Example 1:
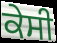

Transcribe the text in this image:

ਕੇਸੀ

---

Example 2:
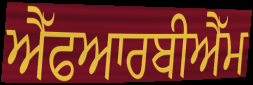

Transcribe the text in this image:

ਐੱਫਆਰਬੀਐੱਮ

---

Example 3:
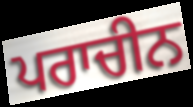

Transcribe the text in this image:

ਪਰਾਚੀਨ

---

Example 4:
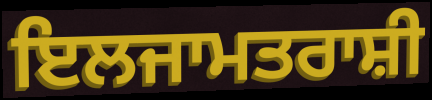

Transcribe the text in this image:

ਇਲਜਾਮਤਰਾਸ਼ੀ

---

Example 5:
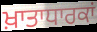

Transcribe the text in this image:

ਖ਼ਾਤਾਧਾਰਕਾਂ